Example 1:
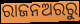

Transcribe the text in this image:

ରାଜନଅରରୁ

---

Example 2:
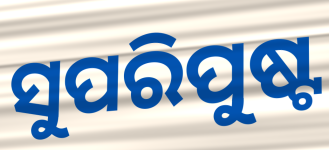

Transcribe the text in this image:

ସୁପରିପୁଷ୍ଟ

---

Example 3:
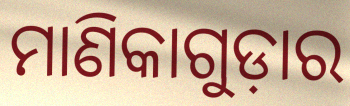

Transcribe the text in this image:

ମାଣିକାଗୁଡ଼ାର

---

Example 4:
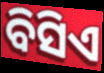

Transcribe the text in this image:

ବିସିଏ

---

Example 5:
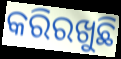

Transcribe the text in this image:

କରିରଖୁଛି